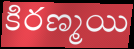
కిరణ్మయి